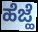
ಹೆಜ್ಹೆ